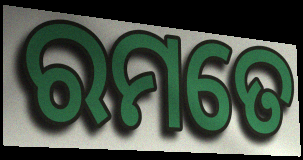
ରମତେ